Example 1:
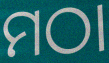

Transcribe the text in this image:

ମଠା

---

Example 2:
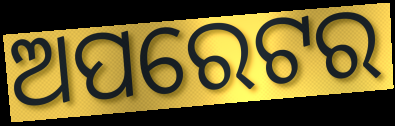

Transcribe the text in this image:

ଅପରେଟର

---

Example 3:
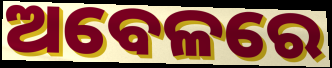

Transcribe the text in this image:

ଅବେଳରେ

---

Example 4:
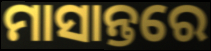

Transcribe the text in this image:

ମାସାନ୍ତରେ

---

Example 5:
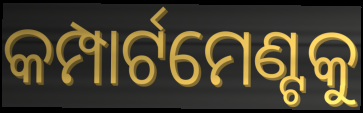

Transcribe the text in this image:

କମ୍ପାର୍ଟମେଣ୍ଟକୁ